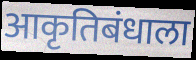
आकृतिबंधाला